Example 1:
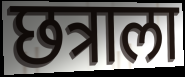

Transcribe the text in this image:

छत्राला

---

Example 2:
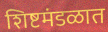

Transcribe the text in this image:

शिष्टमंडळात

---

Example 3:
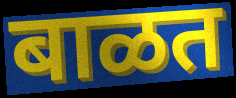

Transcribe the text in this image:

बाळत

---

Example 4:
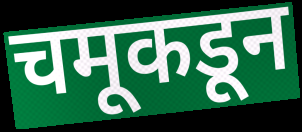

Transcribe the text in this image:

चमूकडून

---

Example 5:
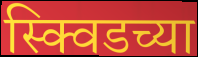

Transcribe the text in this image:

स्क्विडच्या